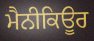
ਮੈਨੀਕਿਊਰ